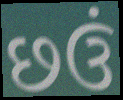
છઉં